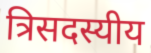
त्रिसदस्यीय